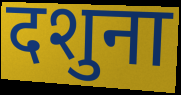
दशुना